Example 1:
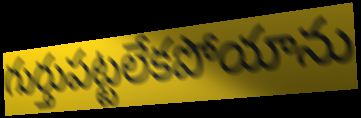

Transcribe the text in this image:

గుర్తుపట్టలేకపోయాను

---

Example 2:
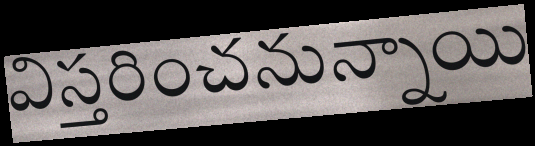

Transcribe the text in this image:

విస్తరించనున్నాయి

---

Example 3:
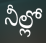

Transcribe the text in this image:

నీల్లో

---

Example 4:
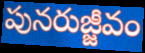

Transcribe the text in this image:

పునరుజ్జీవం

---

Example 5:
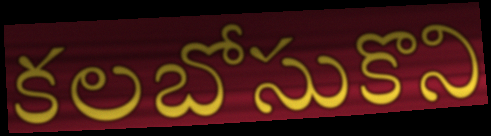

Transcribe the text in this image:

కలబోసుకొని